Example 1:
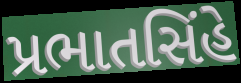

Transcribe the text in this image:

પ્રભાતસિંહે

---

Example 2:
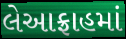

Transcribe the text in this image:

લેઆફ્રાહમાં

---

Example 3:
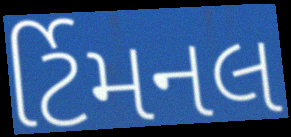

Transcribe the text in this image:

ર્ટિમનલ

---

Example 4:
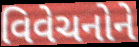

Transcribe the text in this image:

વિવેચનોને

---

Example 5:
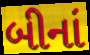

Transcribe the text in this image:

બીનાં